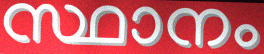
സ്ഥാനം